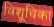
विशूचिका